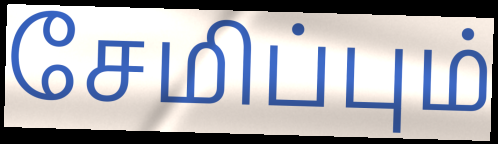
சேமிப்பும்